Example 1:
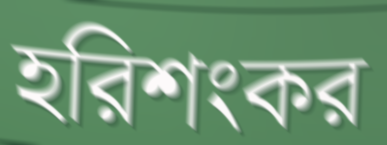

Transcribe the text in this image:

হরিশংকর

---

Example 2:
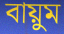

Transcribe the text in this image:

বায়ুম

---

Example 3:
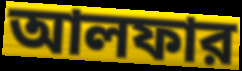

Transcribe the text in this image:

আলফার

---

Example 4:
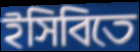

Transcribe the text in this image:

ইসিবিতে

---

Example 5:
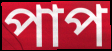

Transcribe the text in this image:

পাপ